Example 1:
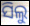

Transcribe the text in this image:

ସିଲୁ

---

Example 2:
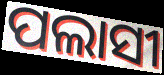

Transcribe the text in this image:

ପଲାସୀ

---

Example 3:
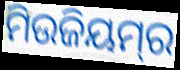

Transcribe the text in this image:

ମିଉଜିୟମ୍‌ର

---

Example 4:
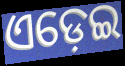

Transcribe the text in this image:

ଏଡ଼େଇ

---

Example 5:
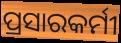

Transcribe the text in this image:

ପ୍ରସାରକର୍ମୀ